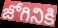
జోగినికి